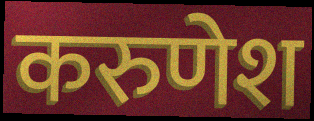
करुणेश